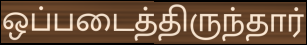
ஒப்படைத்திருந்தார்